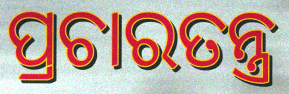
ପ୍ରଚାରତନ୍ତ୍ର